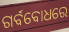
ଗର୍ବବୋଧରେ